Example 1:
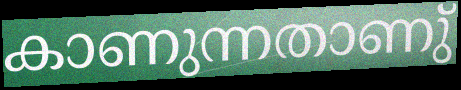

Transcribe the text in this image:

കാണുന്നതാണു്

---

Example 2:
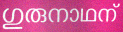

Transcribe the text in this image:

ഗുരുനാഥന്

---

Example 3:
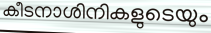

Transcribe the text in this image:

കീടനാശിനികളുടെയും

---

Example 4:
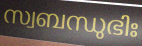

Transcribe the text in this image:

സ്വബന്ധുഭിഃ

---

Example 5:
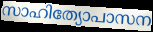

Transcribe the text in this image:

സാഹിത്യോപാസന